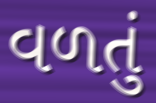
વળતું